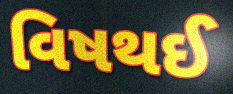
વિષથઈ